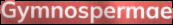
Gymnospermae